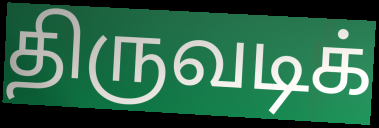
திருவடிக்